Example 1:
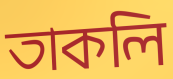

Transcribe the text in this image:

তাকলি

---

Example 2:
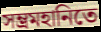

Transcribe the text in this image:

সম্ভ্রমহানিতে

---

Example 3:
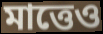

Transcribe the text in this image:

মাত্তেও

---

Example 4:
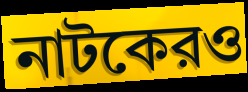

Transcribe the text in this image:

নাটকেরও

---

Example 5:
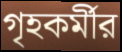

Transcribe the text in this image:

গৃহকর্মীর